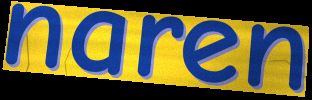
naren